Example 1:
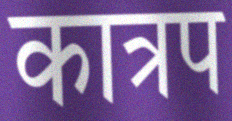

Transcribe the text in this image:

कात्रप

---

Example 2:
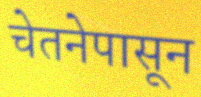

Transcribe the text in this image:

चेतनेपासून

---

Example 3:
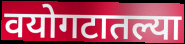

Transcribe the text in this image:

वयोगटातल्या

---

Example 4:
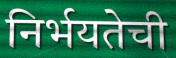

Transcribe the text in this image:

निर्भयतेची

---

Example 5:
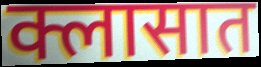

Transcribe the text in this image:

क्लासात